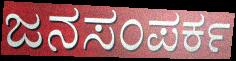
ಜನಸಂಪರ್ಕ